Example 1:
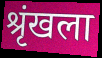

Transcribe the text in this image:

श्रृंखला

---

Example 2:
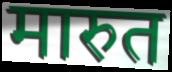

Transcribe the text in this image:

मारुत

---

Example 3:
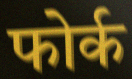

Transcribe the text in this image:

फोर्क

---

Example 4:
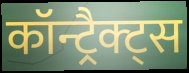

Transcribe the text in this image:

कॉन्‍ट्रैक्‍ट्स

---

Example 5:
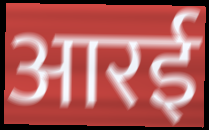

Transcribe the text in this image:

आरई